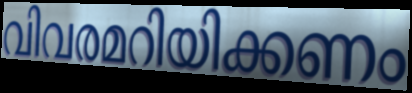
വിവരമറിയിക്കണം